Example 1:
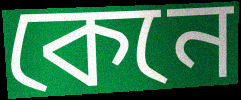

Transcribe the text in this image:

কেনে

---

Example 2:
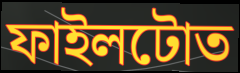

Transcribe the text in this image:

ফাইলটোত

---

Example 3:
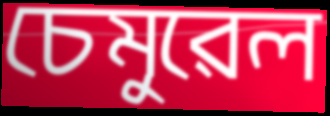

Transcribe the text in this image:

চেমুৱেল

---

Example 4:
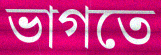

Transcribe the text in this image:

ভাগতে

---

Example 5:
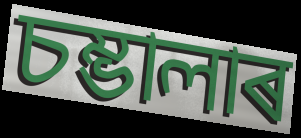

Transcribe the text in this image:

চম্ভালাৰ